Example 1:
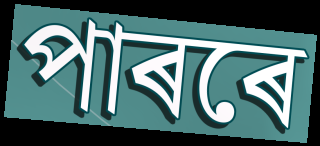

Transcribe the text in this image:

পাৰৰে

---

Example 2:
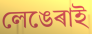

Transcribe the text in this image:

লেঙেৰাই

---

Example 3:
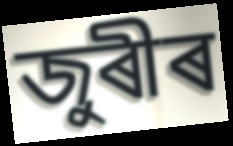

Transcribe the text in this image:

জুৰীৰ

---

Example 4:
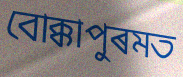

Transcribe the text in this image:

বোক্কাপুৰমত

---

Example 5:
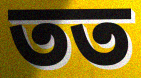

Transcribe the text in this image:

তত